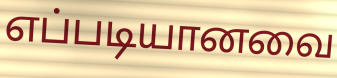
எப்படியானவை